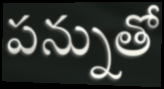
పన్నుతో